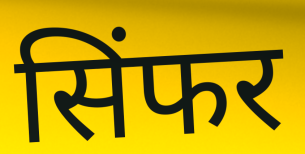
सिंफर